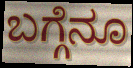
ಬಗ್ಗೆನೂ